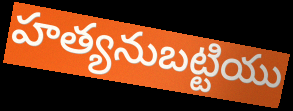
హత్యనుబట్టియు